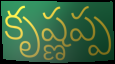
కృష్ణప్ప